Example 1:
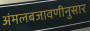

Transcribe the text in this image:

अंमलबजावणीनुसार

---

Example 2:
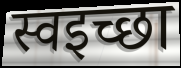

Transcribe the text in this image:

स्वइच्छा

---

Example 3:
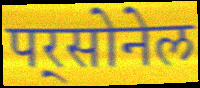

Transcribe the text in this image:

पर्सोनेल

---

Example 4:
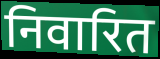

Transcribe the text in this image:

निवारित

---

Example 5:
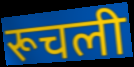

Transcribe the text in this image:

रूचली